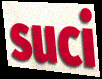
suci